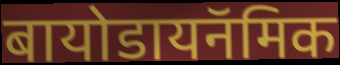
बायोडायनॅमिक